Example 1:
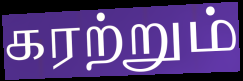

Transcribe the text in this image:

கரற்றும்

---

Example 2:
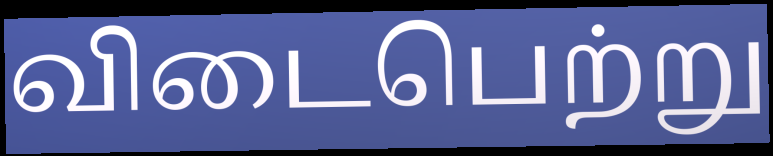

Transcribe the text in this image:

விடைபெற்று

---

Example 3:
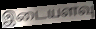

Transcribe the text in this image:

இடையளவு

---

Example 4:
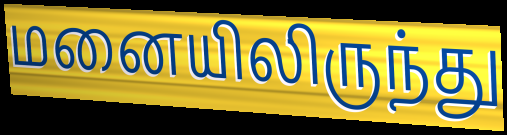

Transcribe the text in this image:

மனையிலிருந்து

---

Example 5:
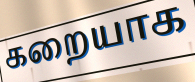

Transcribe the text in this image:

கறையாக